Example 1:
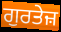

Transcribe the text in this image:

ਗੁਰਤੇਜ਼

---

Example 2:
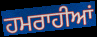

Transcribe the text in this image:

ਹਮਰਾਹੀਆਂ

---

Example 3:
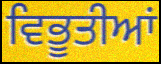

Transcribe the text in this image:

ਵਿਭੂਤੀਆਂ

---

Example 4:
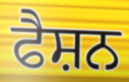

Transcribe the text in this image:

ਫੈਸ਼ਨ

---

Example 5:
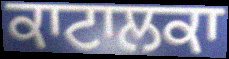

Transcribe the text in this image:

ਕਾਟਾਲਕਾ